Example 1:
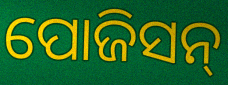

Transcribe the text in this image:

ପୋଜିସନ୍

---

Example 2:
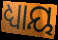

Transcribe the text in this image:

ଧ୍ୟାୟ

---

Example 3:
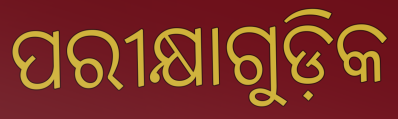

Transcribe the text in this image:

ପରୀକ୍ଷାଗୁଡ଼ିକ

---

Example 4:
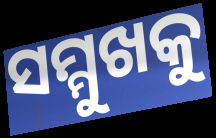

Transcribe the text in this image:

ସମ୍ମୁଖକୁ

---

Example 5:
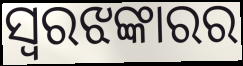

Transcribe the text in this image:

ସ୍ୱରଝଙ୍କାରର